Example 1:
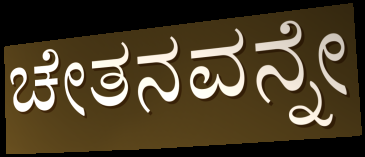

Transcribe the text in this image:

ಚೇತನವನ್ನೇ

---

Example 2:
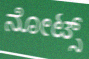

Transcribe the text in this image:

ನೋಟ್ಸ್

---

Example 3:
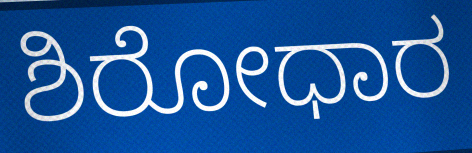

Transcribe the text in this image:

ಶಿರೋಧಾರ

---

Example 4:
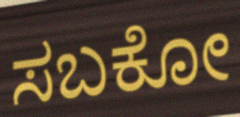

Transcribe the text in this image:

ಸಬಕೋ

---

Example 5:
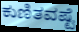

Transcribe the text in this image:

ಕುಣಿತವಷ್ಟೆ